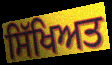
ਸਿੱਖਿਅਤ